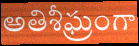
అతిశీఘ్రంగా